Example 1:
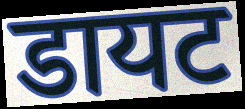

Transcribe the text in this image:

डायट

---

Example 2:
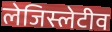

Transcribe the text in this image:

लेजिस्लेटीव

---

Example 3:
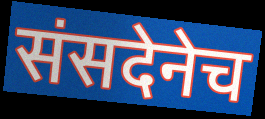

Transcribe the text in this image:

संसदेनेच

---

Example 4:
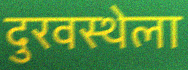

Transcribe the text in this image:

दुरवस्थेला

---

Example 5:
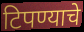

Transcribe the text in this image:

टिपण्याचे